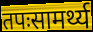
तपःसामर्थ्य